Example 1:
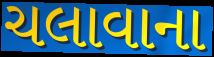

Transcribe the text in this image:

ચલાવાના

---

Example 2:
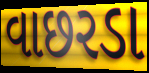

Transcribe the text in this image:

વાછરડા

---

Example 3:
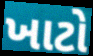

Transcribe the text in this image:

ખાટો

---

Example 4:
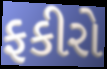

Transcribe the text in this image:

ફકીરો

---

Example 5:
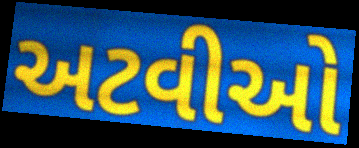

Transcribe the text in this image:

અટવીઓ